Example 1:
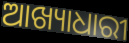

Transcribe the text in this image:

ଆଖ୍ୟାଧାରୀ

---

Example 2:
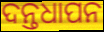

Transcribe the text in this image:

ଦନ୍ତଧାପନ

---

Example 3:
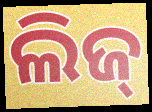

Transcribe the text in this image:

ଲିଜ୍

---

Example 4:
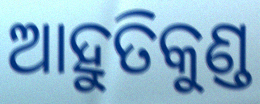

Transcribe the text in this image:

ଆହୁତିକୁଣ୍ଡ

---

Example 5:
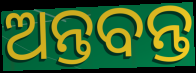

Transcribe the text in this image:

ଅନ୍ତବନ୍ତ